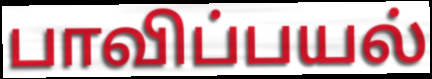
பாவிப்பயல்